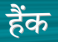
हैंक